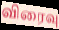
விரைவு